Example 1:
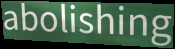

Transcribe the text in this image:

abolishing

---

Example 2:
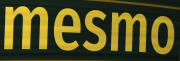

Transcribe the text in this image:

mesmo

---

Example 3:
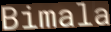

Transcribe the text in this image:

Bimala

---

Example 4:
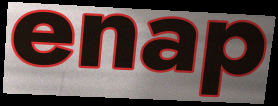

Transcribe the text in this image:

enap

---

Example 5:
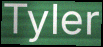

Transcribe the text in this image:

Tyler